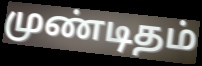
முண்டிதம்